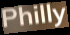
Philly